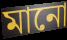
মানো